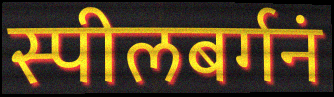
स्पीलबर्गनं